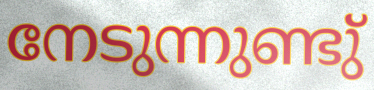
നേടുന്നുണ്ടു്